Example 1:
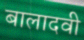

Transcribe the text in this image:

बालादवी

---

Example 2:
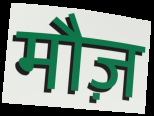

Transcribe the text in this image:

मौज़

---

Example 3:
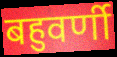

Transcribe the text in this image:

बहुवर्णी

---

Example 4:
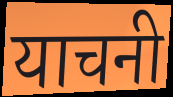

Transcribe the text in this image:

याचनी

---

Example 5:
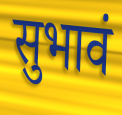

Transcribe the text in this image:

सुभावं